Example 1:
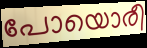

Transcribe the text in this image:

പോയൊരീ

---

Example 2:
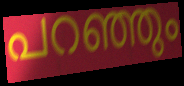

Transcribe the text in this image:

പറഞ്ഞും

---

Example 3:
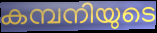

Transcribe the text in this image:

കമ്പനിയുടെ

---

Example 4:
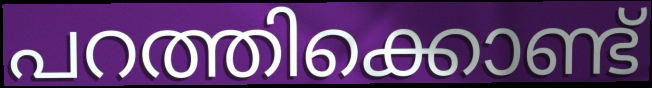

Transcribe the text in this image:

പറത്തിക്കൊണ്ട്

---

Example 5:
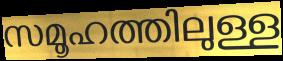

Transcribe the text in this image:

സമൂഹത്തിലുള്ള